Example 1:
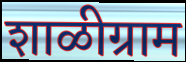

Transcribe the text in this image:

शाळीग्राम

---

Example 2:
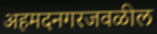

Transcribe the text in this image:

अहमदनगरजवळील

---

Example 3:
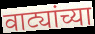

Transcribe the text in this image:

वाट्यांच्या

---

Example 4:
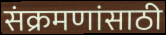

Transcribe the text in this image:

संक्रमणांसाठी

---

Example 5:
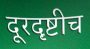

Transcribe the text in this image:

दूरदृष्टीच